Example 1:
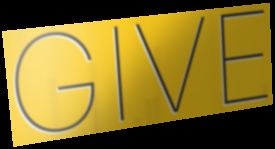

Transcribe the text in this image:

GIVE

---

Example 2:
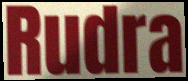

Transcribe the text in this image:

Rudra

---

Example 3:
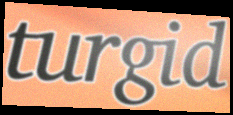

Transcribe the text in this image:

turgid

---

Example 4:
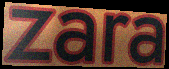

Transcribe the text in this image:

zara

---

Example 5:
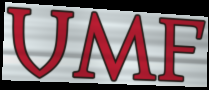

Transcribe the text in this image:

UMF